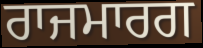
ਰਾਜਮਾਰਗ